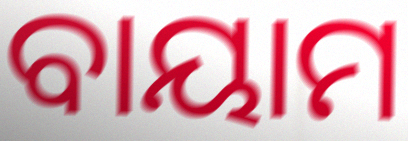
ବାୟାମ